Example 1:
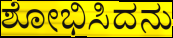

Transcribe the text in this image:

ಶೋಭಿಸಿದನು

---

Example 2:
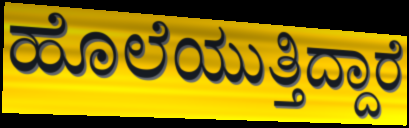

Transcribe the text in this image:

ಹೊಲೆಯುತ್ತಿದ್ದಾರೆ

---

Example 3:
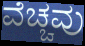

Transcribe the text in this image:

ವೆಚ್ಚವು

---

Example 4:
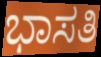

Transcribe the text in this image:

ಭಾಸತಿ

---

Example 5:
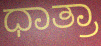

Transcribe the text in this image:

ಧಾತ್ರಾ